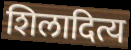
शिलादित्य